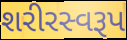
શરીરસ્વરૂપ